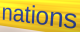
nations